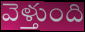
వెళ్తుంది